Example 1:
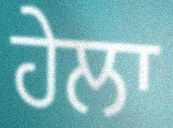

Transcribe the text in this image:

ਹੇਲਾ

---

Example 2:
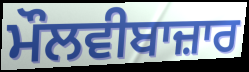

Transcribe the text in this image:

ਮੌਲਵੀਬਾਜ਼ਾਰ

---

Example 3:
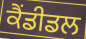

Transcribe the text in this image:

ਕੈਂਡੀਡਲ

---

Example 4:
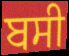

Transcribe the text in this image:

ਬਸੀ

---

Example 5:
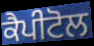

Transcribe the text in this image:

ਕੈਪੀਟੋਲ